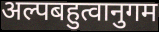
अल्पबहुत्वानुगम